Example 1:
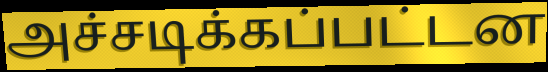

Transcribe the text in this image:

அச்சடிக்கப்பட்டன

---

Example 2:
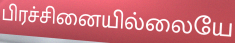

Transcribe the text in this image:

பிரச்சினையில்லையே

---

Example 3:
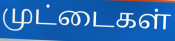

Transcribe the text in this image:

முட்டைகள்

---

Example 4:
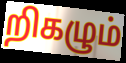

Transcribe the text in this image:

றிகழும்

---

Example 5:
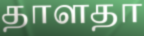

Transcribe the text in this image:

தாளதா